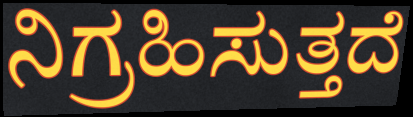
ನಿಗ್ರಹಿಸುತ್ತದೆ